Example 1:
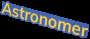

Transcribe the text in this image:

Astronomer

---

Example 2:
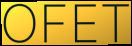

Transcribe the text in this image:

OFET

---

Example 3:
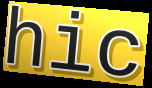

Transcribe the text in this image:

hic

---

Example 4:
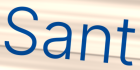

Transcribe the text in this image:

Sant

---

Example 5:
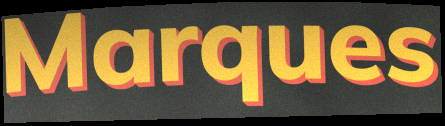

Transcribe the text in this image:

Marques